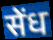
सेंध